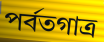
পর্বতগাত্র